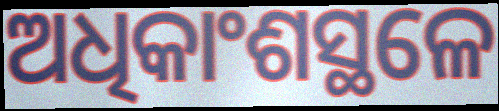
ଅଧିକାଂଶସ୍ଥଳେ